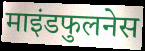
माइंडफुलनेस